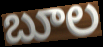
బూల